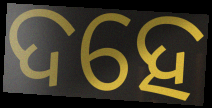
ଦହେ